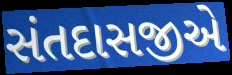
સંતદાસજીએ